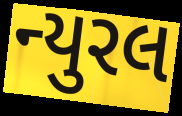
ન્યુરલ